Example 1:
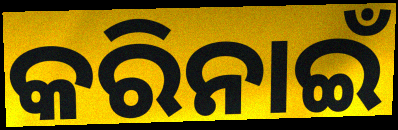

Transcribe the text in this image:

କରିନାଇଁ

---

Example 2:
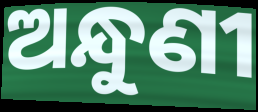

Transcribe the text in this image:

ଅନ୍ଧୁଣୀ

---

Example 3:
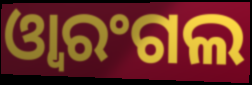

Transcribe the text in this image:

ଓ୍ୱାରଂଗଲ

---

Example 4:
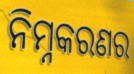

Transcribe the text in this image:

ନିମ୍ନକରଣର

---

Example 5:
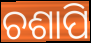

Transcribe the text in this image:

ଚଶାପି